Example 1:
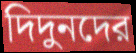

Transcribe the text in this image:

দিদুনদের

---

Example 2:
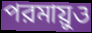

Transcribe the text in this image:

পরমায়ুও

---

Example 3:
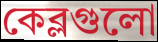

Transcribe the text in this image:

কেব্লগুলো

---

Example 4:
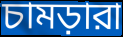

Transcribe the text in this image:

চামড়ারা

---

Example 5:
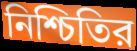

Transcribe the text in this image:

নিশ্চিতির